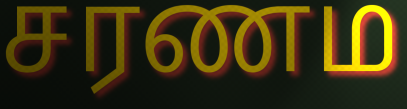
சரணம